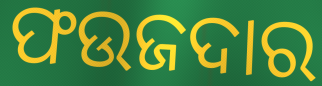
ଫଉଜଦାର